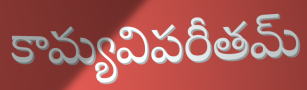
కామ్యవిపరీతమ్